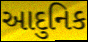
આદુનિક